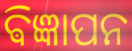
ଵିଜ୍ଞାପନ